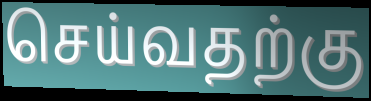
செய்வதற்கு